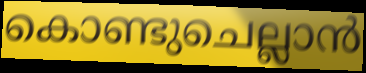
കൊണ്ടുചെല്ലാൻ